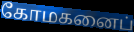
கோமகனைப்